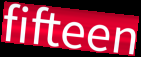
fifteen